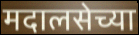
मदालसेच्या